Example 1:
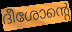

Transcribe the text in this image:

ദീശോന്റെ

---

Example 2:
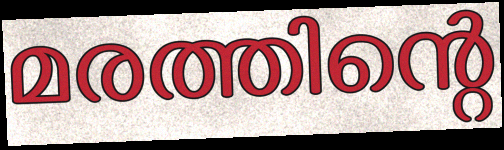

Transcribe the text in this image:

മരത്തിന്റെ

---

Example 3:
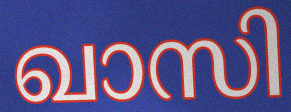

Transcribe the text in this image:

ഖാസി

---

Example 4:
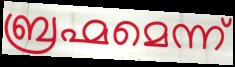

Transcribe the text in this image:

ബ്രഹ്മമെന്ന്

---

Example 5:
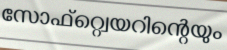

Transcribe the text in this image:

സോഫ്റ്റ്വെയറിന്റെയും